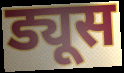
ड्यूस